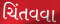
ચિંતવવા